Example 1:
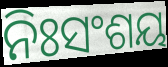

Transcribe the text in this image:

ନିଃସଂଶୟ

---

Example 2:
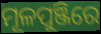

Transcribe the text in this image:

ମୂଳପୁଞ୍ଜିରେ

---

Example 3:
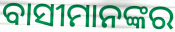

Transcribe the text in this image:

ବାସୀମାନଙ୍କର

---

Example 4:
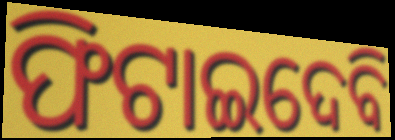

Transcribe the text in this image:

ଫିଟାଇଦେବି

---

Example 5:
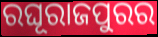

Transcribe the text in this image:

ରଘୂରାଜପୁରର